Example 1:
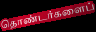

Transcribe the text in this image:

தொண்டர்களைப்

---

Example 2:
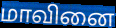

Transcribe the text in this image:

மாவினை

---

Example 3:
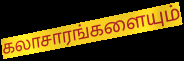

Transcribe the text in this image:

கலாசாரங்களையும்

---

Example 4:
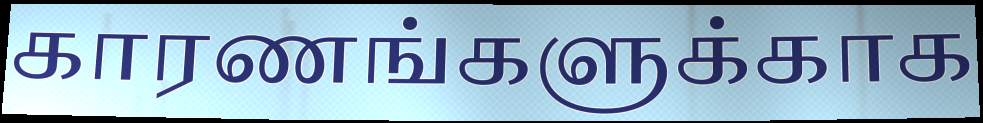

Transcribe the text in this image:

காரணங்களுக்காக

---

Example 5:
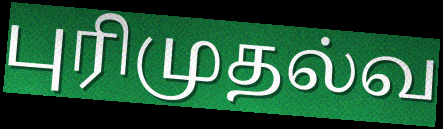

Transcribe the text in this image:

புரிமுதல்வ